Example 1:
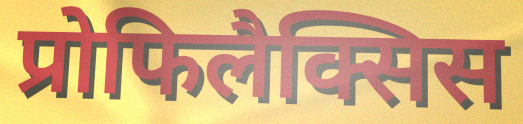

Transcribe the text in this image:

प्रोफिलैक्सिस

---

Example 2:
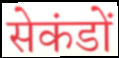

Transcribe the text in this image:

सेकंडों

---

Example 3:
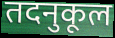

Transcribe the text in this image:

तदनुकूल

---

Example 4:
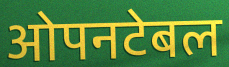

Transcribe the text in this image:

ओपनटेबल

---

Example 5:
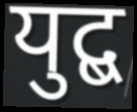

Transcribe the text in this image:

युद्ब